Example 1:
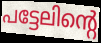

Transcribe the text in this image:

പട്ടേലിന്റെ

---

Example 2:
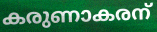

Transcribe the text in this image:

കരുണാകരന്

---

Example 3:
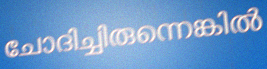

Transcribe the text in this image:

ചോദിച്ചിരുന്നെങ്കിൽ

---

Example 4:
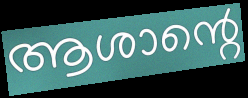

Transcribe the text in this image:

ആശാന്റെ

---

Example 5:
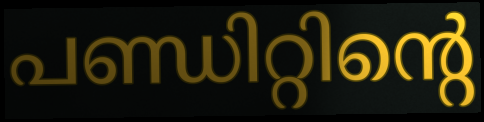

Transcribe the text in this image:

പണ്ഡിറ്റിന്റെ